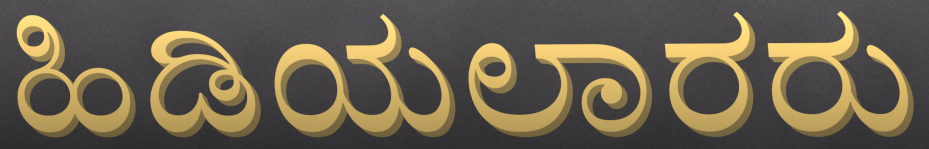
ಹಿಡಿಯಲಾರರು